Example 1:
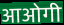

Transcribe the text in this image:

आओगी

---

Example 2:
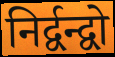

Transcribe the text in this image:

निर्द्वन्द्वो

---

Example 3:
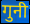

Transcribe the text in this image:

गुनी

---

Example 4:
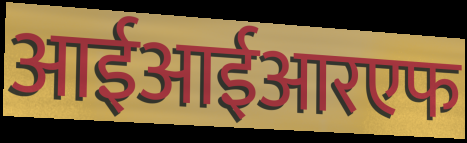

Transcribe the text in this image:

आईआईआरएफ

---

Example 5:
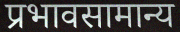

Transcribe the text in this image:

प्रभावसामान्य